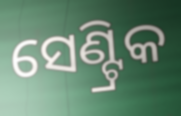
ସେଣ୍ଟ୍ରିକ